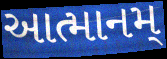
આત્માનમ્